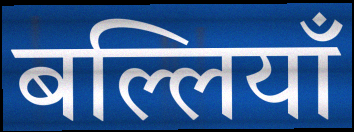
बल्लियाँ